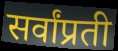
सर्वांप्रती